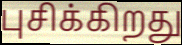
புசிக்கிறது